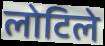
लोटिले